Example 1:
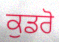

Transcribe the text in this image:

ਕੁਡਰੋ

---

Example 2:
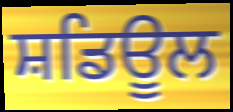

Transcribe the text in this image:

ਸ਼ਡਿਊਲ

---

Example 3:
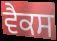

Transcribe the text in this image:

ਵੈਕਸ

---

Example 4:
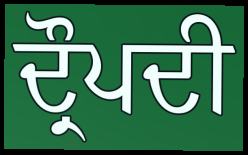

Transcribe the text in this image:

ਦ੍ਰੌਪਦੀ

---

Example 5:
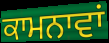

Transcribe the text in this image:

ਕਾਮਨਾਵਾਂ